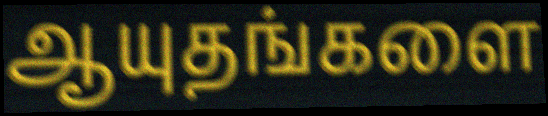
ஆயுதங்களை